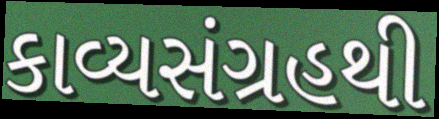
કાવ્યસંગ્રહથી